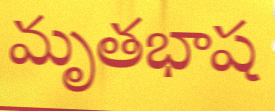
మృతభాష